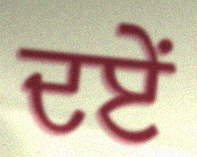
ਦਏਂ